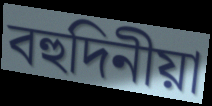
বহুদিনীয়া